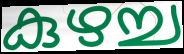
കുഴച്ച